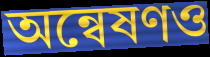
অন্বেষণও